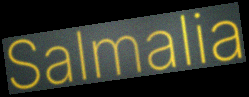
Salmalia